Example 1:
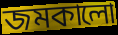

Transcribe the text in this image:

জমকালো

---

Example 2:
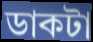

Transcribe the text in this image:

ডাকটা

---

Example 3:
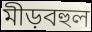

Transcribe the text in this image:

মীড়বহুল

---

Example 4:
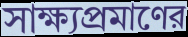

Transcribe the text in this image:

সাক্ষ্যপ্রমাণের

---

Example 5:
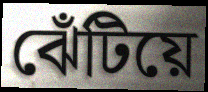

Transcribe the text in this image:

ঝেঁটিয়ে